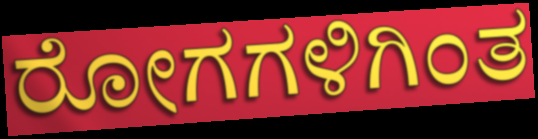
ರೋಗಗಳಿಗಿಂತ